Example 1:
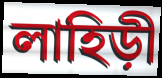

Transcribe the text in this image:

লাহিড়ী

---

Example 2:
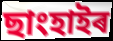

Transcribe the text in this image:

ছাংহাইৰ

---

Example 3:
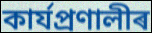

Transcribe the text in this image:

কাৰ্যপ্ৰণালীৰ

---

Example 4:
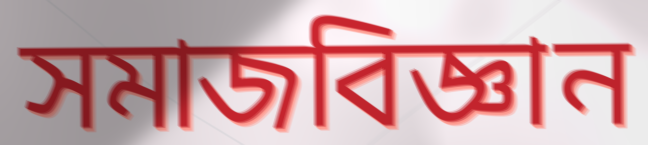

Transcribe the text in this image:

সমাজবিজ্ঞান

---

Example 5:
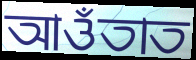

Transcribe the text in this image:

আওঁতাত